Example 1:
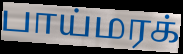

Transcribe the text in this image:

பாய்மரக்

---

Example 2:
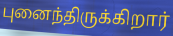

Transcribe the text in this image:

புனைந்திருக்கிறார்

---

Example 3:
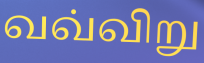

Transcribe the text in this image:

வவ்விறு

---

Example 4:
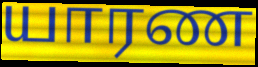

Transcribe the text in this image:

யாரண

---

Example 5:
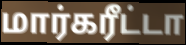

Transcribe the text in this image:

மார்கரீட்டா